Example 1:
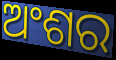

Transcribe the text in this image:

ଅଂଶର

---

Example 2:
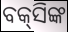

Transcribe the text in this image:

ବକ୍‌ସିଙ୍କ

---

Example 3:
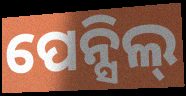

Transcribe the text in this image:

ପେନ୍ସିଲ୍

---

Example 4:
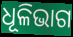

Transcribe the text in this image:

ଧୂଳିଭାଗ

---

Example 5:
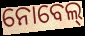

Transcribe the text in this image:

ନୋବେଲ୍